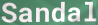
Sandal